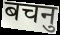
बचनु